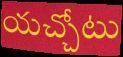
యచ్చోటు